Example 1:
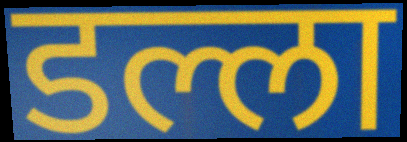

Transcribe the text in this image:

डल्ला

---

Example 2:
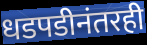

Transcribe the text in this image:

धडपडीनंतरही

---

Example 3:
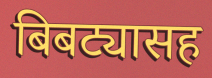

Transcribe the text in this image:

बिबट्यासह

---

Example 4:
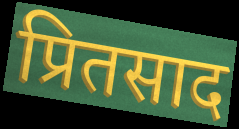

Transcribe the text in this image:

प्रितसाद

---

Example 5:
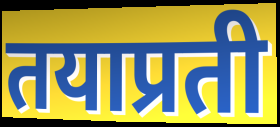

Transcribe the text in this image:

तयाप्रती